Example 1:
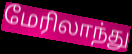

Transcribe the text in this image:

மேரிலாந்து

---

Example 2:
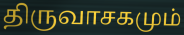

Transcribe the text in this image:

திருவாசகமும்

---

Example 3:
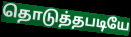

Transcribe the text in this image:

தொடுத்தபடியே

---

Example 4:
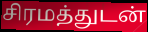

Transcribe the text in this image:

சிரமத்துடன்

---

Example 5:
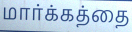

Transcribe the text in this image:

மார்க்கத்தை